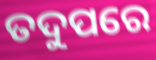
ତଦୁପରେ